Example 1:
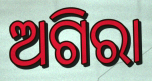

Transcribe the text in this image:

ଅଗିରା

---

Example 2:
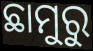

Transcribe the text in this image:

ଛାମୁରୁ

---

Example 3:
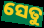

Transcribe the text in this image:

ସେତୁ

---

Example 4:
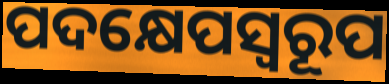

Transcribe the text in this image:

ପଦକ୍ଷେପସ୍ୱରୂପ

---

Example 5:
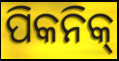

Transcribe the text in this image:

ପିକନିକ୍